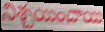
నిశ్చయించాయి